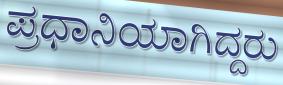
ಪ್ರಧಾನಿಯಾಗಿದ್ದರು